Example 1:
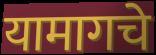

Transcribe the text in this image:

यामागचे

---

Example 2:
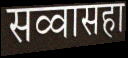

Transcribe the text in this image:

सव्वासहा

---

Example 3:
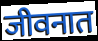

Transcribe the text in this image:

जीवनात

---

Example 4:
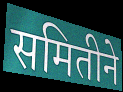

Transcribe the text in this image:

समितीने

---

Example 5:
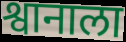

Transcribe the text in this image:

श्वानाला